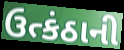
ઉત્કંઠાની